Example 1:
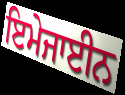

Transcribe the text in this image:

ਇਮੇਜਾਈਨ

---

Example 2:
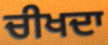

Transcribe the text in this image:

ਚੀਖਦਾ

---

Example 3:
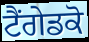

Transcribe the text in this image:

ਟੈਂਗੇਡਕੋ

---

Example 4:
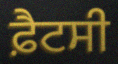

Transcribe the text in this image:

ਫ਼ੈਟਸੀ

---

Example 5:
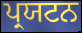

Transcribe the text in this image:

ਪ੍ਰਯਟਨ